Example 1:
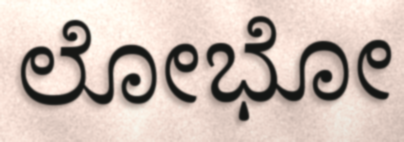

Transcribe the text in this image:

ಲೋಭೋ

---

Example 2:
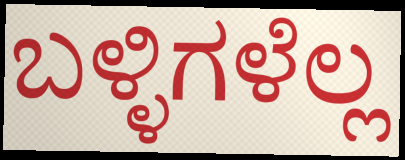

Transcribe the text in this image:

ಬಳ್ಳಿಗಳೆಲ್ಲ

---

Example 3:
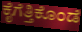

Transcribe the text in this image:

ಕೈಗೆತ್ತಿಕೊಂಡೆ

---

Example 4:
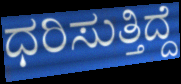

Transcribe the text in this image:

ಧರಿಸುತ್ತಿದ್ದೆ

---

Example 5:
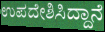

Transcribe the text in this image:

ಉಪದೇಶಿಸಿದ್ದಾನೆ